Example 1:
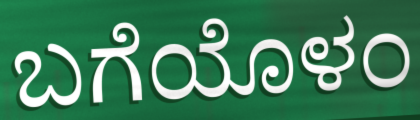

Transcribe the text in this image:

ಬಗೆಯೊಳಂ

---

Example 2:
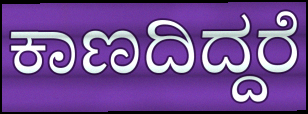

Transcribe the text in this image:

ಕಾಣದಿದ್ದರೆ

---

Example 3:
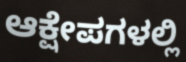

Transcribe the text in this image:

ಆಕ್ಷೇಪಗಳಲ್ಲಿ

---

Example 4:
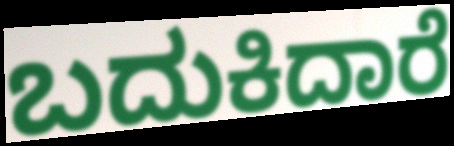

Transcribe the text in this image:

ಬದುಕಿದಾರೆ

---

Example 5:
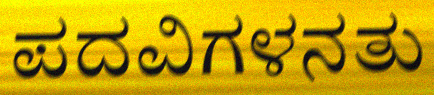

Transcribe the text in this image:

ಪದವಿಗಳನತು